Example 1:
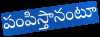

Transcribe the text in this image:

పంపిస్తానంటూ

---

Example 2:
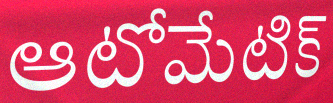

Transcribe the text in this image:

ఆటోమేటిక్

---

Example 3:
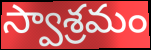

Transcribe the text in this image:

స్వాశ్రమం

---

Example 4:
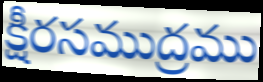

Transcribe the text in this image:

క్షీరసముద్రము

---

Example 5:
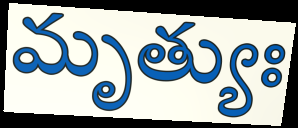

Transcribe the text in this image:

మృత్యుః